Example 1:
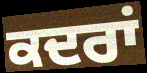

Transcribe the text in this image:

ਕਦਰਾਂ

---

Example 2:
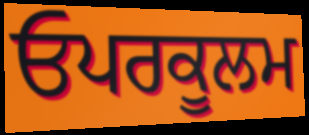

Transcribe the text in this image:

ਓਪਰਕੂਲਮ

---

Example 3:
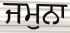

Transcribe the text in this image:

ਜਮੁਨਾ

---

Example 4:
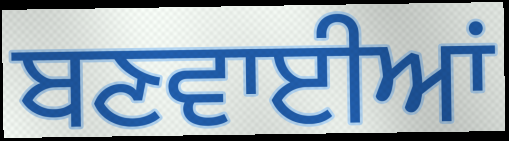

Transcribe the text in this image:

ਬਣਵਾਈਆਂ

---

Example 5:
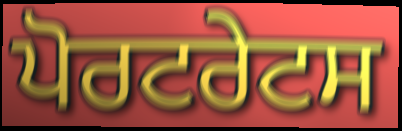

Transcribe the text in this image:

ਪੋਰਟਰੇਟਸ